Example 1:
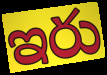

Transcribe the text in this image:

ఇరు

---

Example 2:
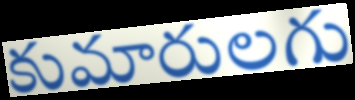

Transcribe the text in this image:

కుమారులగు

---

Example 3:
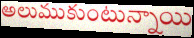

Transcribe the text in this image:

అలుముకుంటున్నాయి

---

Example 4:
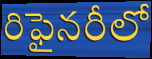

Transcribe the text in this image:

రిఫైనరీలో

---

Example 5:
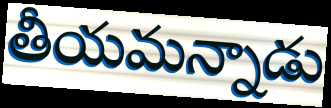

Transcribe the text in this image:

తీయమన్నాడు